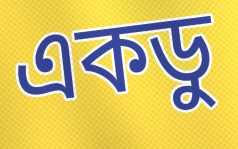
একডু